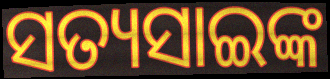
ସତ୍ୟସାଇଙ୍କ